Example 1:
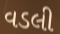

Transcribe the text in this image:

વડલી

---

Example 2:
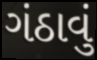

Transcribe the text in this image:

ગંઠાવું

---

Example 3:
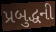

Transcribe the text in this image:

પ્રબુદ્ધની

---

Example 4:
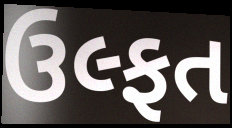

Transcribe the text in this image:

ઉલ્ફત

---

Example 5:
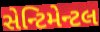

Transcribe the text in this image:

સેન્ટિમેન્ટલ